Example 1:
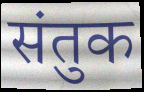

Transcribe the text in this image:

संतुक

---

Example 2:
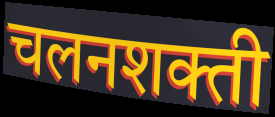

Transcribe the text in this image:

चलनशक्ती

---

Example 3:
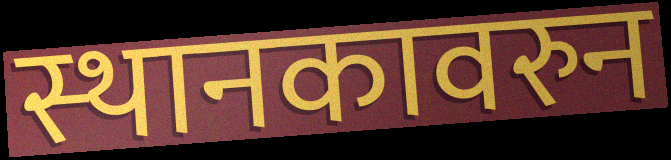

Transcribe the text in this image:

स्थानकावरुन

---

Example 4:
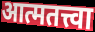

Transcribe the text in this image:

आत्मतत्त्वा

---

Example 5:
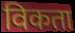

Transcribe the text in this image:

विकता